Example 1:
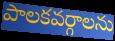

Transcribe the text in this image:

పాలకవర్గాలను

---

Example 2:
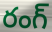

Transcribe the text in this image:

రంగ్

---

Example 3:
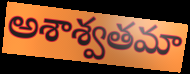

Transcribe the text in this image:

అశాశ్వతమా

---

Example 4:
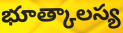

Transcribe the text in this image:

భూత్కాలస్య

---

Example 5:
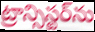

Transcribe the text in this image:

ట్రాన్సిస్టర్‌ను